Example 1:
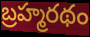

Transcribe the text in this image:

బ్రహ్మరథం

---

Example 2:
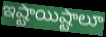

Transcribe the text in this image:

ఇష్టాయిష్టాలూ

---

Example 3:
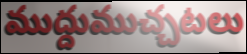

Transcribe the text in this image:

ముద్దుముచ్చటలు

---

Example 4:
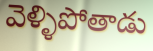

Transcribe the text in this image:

వెళ్ళిపోతాడు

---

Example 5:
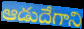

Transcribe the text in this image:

ఆడుదేగాని